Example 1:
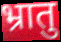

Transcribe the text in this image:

भ्रातु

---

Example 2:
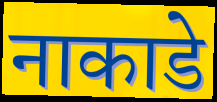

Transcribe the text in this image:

नाकाडे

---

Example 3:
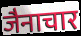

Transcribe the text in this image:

जैनाचार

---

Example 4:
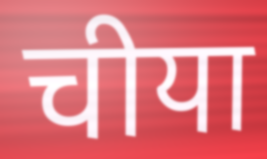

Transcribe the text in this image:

चीया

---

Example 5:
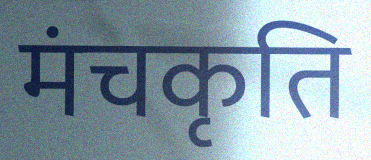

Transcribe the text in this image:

मंचकृति